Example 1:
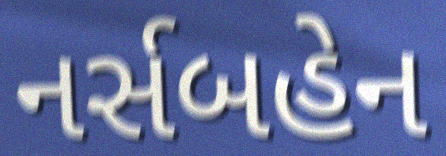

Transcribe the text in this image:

નર્સબહેન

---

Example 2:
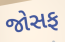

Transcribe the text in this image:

જોસફ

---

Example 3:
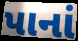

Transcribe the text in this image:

પાનાં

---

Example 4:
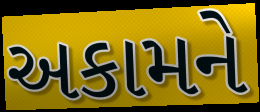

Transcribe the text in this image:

અકામને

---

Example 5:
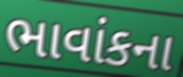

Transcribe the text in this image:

ભાવાંકના